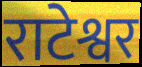
राटेश्वर